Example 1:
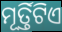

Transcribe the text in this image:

ମୂର୍ତ୍ତିଟିଏ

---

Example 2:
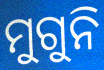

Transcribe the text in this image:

ମୁଗୁନି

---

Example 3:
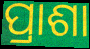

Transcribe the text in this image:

ପ୍ରାଶା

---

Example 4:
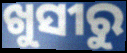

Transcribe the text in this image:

ଖୁସୀରୁ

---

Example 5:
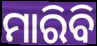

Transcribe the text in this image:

ମାରିବି